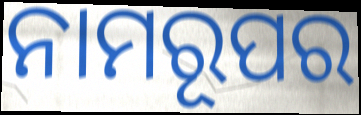
ନାମରୂପର